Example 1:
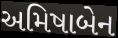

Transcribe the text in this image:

અમિષાબેન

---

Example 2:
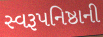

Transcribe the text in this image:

સ્વરૂપનિષ્ઠાની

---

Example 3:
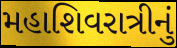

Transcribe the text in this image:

મહાશિવરાત્રીનું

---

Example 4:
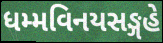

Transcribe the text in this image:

ધમ્મવિનયસઙ્ગહે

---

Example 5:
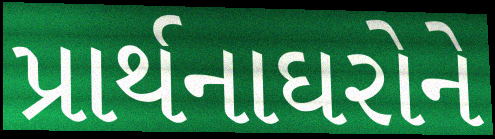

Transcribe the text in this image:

પ્રાર્થનાઘરોને